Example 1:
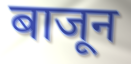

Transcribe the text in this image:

बाजून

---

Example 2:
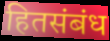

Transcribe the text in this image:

हितसंबंध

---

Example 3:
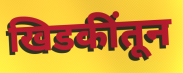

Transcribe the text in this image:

खिडकींतून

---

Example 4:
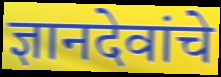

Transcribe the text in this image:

ज्ञानदेवांचे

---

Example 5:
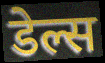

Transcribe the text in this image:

डेल्स